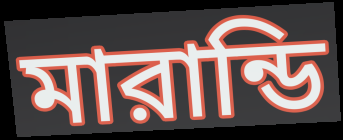
মারান্ডি